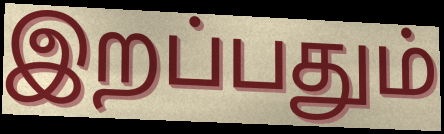
இறப்பதும்